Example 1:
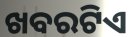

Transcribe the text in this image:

ଖବରଟିଏ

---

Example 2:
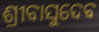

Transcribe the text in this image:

ଶ୍ରୀବାସୁଦେବ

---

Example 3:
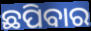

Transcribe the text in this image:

ଛପିବାର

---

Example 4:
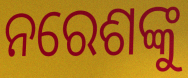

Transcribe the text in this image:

ନରେଶଙ୍କୁ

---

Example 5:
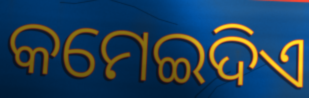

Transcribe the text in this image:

କମେଇଦିଏ